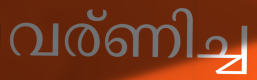
വര്ണിച്ച